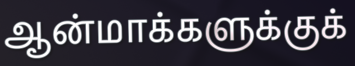
ஆன்மாக்களுக்குக்